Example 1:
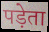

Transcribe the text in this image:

पड़ेता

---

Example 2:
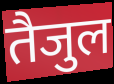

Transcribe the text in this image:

तैजुल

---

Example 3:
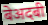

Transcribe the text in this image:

बेअदबी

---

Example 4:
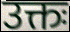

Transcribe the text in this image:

उक्तः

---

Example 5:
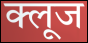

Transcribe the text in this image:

क्लूज